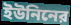
ইউনিনের